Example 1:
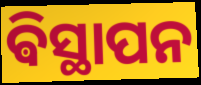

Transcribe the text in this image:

ଵିସ୍ଥାପନ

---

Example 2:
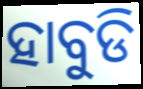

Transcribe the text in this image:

ହାବୁଡି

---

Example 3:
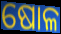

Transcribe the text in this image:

ଷୋଳ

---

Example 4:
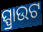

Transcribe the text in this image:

ସ୍ପ୍ରାଉଟ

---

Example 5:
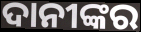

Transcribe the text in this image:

ଦାନୀଙ୍କର